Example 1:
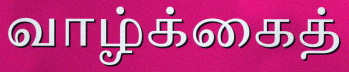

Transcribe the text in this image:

வாழ்க்கைத்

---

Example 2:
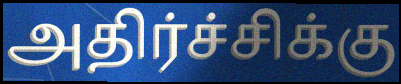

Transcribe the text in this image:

அதிர்ச்சிக்கு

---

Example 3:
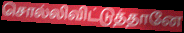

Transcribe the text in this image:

சொல்லிவிட்டுத்தானே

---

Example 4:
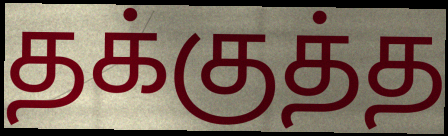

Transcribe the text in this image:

தக்குத்த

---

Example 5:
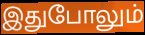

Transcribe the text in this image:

இதுபோலும்